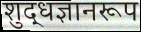
शुद्धज्ञानरूप